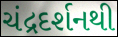
ચંદ્રદર્શનથી